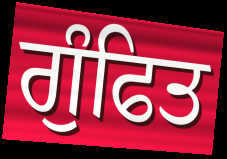
ਗੁੰਫਿਤ